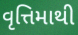
વૃત્તિમાથી